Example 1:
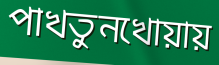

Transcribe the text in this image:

পাখতুনখোয়ায়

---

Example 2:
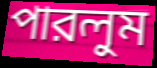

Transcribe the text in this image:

পারলুম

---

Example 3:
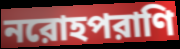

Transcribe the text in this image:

নরোহপরাণি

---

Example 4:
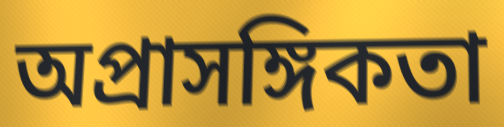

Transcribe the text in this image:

অপ্রাসঙ্গিকতা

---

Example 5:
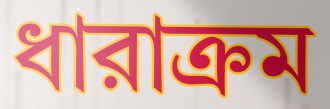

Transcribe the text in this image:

ধারাক্রম